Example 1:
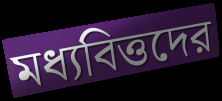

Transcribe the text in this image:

মধ্যবিত্তদের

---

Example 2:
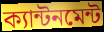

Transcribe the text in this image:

ক্যান্টনমেন্ট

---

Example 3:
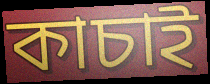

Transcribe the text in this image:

কাচাই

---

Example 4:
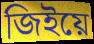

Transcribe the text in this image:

জিইয়ে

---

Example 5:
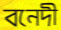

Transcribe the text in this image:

বনেদী